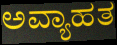
ಅವ್ಯಾಹತ